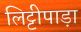
लिट्टीपाड़ा